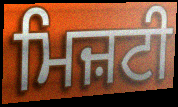
ਮਿਜ਼ਟੀ